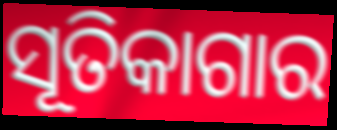
ସୂତିକାଗାର